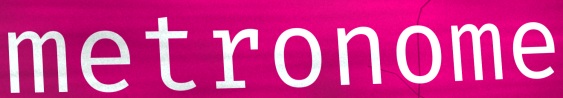
metronome